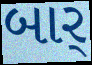
બાર્